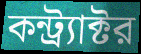
কন্ট্র্যাক্টর